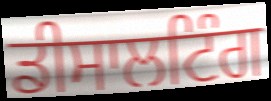
ਡੀਸਾਲਟਿੰਗ